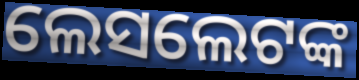
ଲେସଲେଟଙ୍କ